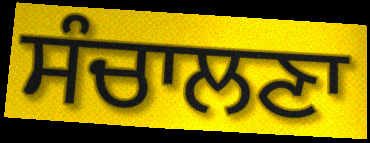
ਸੰਚਾਲਣਾ